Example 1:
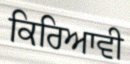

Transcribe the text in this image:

ਕਿਰਿਆਵੀ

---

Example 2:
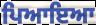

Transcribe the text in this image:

ਪਿਆਇਆ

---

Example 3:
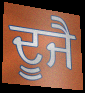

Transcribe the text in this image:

ਦੂਜੈ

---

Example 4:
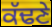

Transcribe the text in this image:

ਕੱਢਣੇ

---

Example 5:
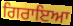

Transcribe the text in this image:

ਗਿਰਾਇਆ